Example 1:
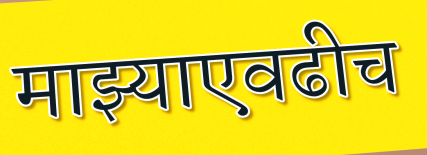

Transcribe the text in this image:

माझ्याएवढीच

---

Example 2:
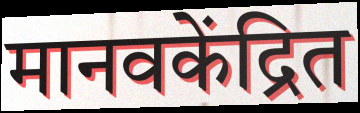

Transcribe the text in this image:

मानवकेंद्रित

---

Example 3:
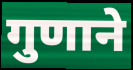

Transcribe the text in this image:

गुणाने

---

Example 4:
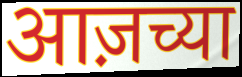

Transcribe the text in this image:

आज़च्या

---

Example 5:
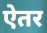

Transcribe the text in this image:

ऐतर